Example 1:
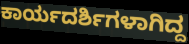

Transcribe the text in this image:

ಕಾರ್ಯದರ್ಶಿಗಳಾಗಿದ್ದ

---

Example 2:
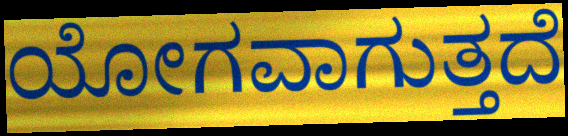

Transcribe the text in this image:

ಯೋಗವಾಗುತ್ತದೆ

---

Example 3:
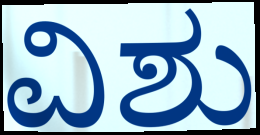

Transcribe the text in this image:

ವಿಶು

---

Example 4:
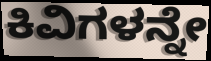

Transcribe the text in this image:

ಕಿವಿಗಳನ್ನೇ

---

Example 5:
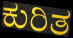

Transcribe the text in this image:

ಕುರಿತ